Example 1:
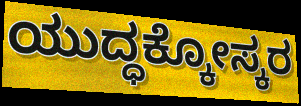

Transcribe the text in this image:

ಯುದ್ಧಕ್ಕೋಸ್ಕರ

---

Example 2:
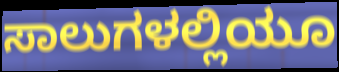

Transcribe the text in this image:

ಸಾಲುಗಳಲ್ಲಿಯೂ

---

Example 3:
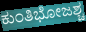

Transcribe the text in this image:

ಕುಂತಿಭೋಜಶ್ಚ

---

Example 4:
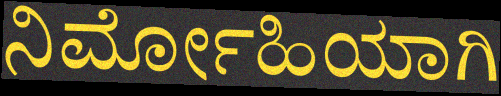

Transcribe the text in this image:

ನಿರ್ಮೋಹಿಯಾಗಿ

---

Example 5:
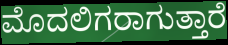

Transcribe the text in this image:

ಮೊದಲಿಗರಾಗುತ್ತಾರೆ